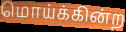
மொய்க்கின்ற